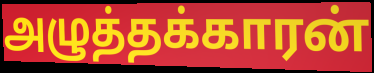
அழுத்தக்காரன்